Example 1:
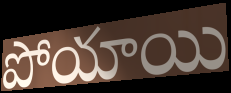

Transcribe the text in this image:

పోయాయి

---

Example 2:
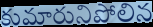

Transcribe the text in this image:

కుమారునిపోలిన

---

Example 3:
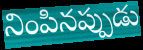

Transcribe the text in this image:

నింపినప్పుడు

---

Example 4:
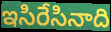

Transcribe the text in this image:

ఇసిరేసినాది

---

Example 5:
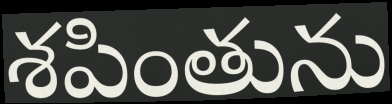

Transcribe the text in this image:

శపింతును